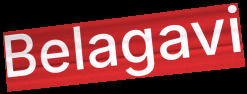
Belagavi